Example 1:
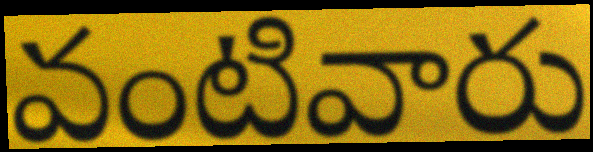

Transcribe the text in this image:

వంటివారు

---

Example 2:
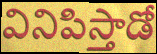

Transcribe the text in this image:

వినిపిస్తాడో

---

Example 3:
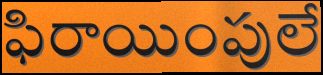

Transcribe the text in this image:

ఫిరాయింపులే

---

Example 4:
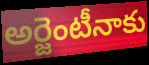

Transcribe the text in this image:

అర్జెంటీనాకు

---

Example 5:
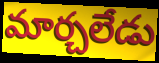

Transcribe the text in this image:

మార్చలేడు